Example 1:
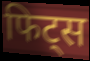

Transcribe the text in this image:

फिट्स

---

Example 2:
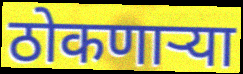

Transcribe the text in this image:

ठोकणाऱ्या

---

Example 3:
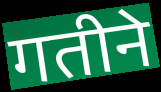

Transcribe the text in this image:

गतीने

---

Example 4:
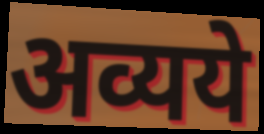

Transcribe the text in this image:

अव्यये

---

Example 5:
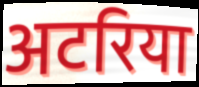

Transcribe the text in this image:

अटरिया